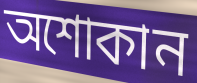
অশোকান